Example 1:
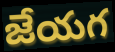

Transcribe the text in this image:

జేయగ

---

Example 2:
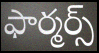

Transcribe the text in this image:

ఫార్మర్స్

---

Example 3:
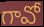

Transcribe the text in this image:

గావో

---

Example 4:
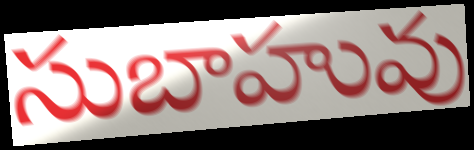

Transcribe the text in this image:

సుబాహువు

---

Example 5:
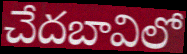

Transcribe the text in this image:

చేదబావిలో